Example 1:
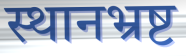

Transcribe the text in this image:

स्थानभ्रष्ट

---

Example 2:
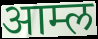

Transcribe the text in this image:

आम्ल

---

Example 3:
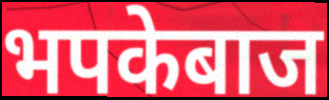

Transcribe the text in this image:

भपकेबाज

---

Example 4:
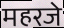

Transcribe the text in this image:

महरजे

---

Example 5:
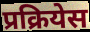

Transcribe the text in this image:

प्रक्रियेस